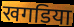
खगडिया